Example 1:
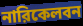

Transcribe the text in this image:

নারিকেলবন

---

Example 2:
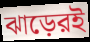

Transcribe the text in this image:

ঝাড়েরই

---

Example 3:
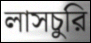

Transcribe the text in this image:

লাসচুরি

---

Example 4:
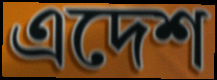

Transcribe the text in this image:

এদেশ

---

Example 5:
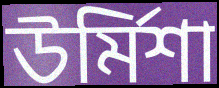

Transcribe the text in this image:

উর্মিশা